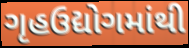
ગૃહઉદ્યોગમાંથી